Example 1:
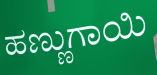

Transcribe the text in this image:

ಹಣ್ಣುಗಾಯಿ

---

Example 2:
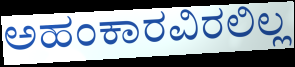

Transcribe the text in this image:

ಅಹಂಕಾರವಿರಲಿಲ್ಲ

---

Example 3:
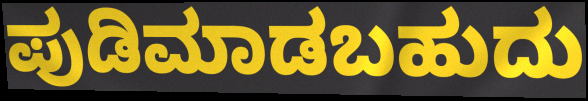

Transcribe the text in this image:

ಪುಡಿಮಾಡಬಹುದು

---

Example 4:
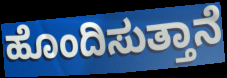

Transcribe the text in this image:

ಹೊಂದಿಸುತ್ತಾನೆ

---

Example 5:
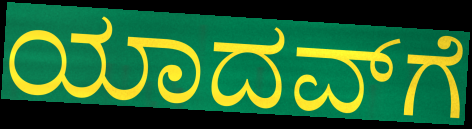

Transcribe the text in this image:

ಯಾದವ್‌ಗೆ